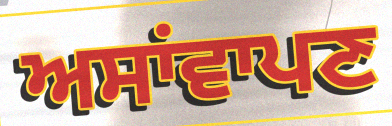
ਅਸਾਂਵਾਪਣ